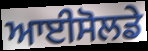
ਆਈਸੋਲਡੇ